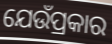
ଯେଉଁପ୍ରକାର